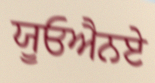
ਯੂਓਐਨਏ